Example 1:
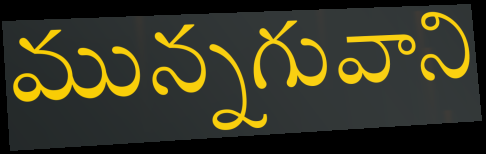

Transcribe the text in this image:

మున్నగువాని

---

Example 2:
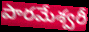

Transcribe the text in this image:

పారమేశ్వరీ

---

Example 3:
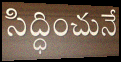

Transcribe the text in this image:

సిద్ధించునే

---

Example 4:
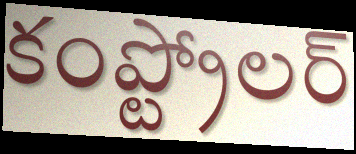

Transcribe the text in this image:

కంప్ట్రోలర్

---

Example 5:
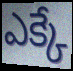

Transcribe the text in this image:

ఎక్కే